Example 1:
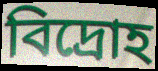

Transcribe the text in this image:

বিদ্রোহ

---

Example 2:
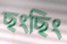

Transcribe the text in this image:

ছংছিং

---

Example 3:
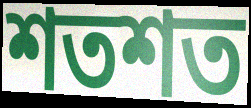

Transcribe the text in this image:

শতশত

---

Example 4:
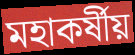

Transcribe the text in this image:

মহাকর্ষীয়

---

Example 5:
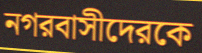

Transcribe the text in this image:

নগরবাসীদেরকে